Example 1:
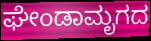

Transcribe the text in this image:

ಘೇಂಡಾಮೃಗದ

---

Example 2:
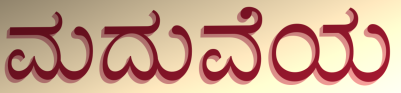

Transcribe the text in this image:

ಮದುವೆಯ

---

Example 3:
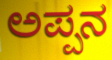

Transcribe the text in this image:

ಅಪ್ಪನ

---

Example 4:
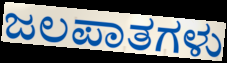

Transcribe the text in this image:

ಜಲಪಾತಗಳು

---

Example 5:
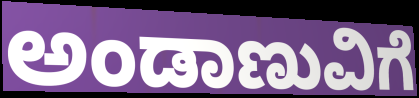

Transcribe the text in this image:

ಅಂಡಾಣುವಿಗೆ